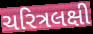
ચરિત્રલક્ષી